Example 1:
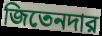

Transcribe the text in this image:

জিতেনদার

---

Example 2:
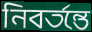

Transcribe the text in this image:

নিবর্তন্তে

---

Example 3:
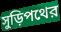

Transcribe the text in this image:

সুড়িপথের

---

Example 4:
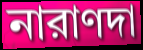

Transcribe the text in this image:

নারাণদা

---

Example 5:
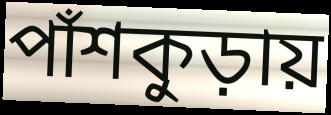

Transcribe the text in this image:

পাঁশকুড়ায়